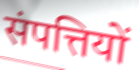
संपत्तियों